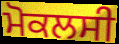
ਮੋਕਲਸੀ